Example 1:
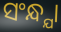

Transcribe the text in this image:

ସଂନ୍ଧ୍ଯା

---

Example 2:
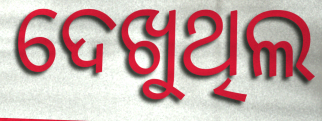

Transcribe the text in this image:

ଦେଖୁଥିଲ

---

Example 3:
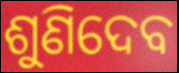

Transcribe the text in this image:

ଶୁଣିଦେବ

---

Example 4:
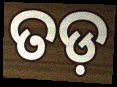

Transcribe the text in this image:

ତଡ଼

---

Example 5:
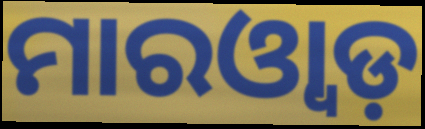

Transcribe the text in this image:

ମାରଓ୍ୱାଡ଼